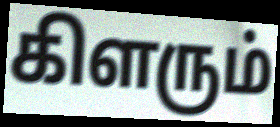
கிளரும்